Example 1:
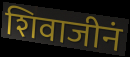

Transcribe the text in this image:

शिवाजीनं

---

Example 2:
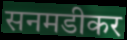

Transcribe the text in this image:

सनमडीकर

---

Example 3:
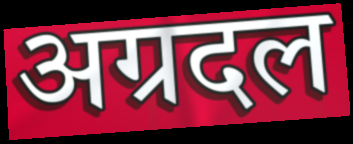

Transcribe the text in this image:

अग्रदल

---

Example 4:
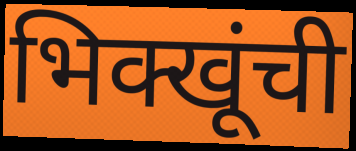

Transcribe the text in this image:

भिक्खूंची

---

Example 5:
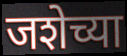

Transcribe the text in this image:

जशेच्या